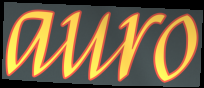
auro